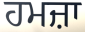
ਹਮਜ਼ਾ